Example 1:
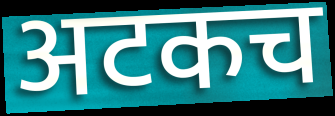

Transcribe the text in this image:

अटकच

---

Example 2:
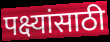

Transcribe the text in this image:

पक्ष्यांसाठी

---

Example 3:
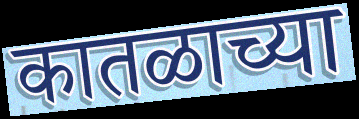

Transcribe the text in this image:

कातळाच्या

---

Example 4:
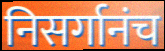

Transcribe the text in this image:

निसर्गानंच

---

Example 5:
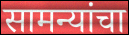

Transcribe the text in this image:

सामन्यांचा